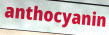
anthocyanin